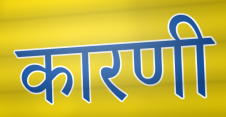
कारणी